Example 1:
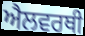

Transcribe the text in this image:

ਐਲਵਰਥੀ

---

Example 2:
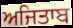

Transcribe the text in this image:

ਅਜਿਤਾਬ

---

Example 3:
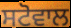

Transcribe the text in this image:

ਸਟੋਵਾਲ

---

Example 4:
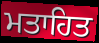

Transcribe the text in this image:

ਮਤਾਹਿਤ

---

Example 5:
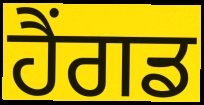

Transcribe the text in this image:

ਹੈਂਗਡ